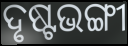
ଦୃଷ୍ଟଭଙ୍ଗୀ